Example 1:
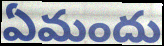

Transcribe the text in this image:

ఏమందు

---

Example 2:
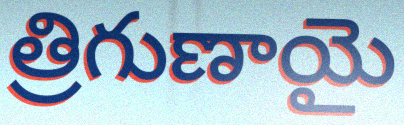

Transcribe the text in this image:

త్రిగుణాయై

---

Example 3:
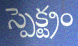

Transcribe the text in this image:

స్పెక్ట్రం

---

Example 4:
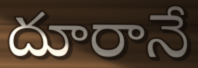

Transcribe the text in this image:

దూరానే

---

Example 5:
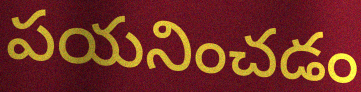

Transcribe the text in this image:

పయనించడం